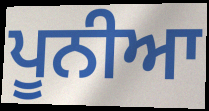
ਪੂਨੀਆ